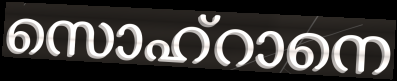
സൊഹ്റാനെ